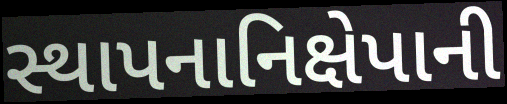
સ્થાપનાનિક્ષેપાની